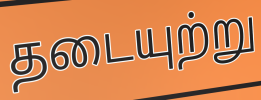
தடையுற்று